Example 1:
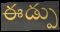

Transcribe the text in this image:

ఈడ్పు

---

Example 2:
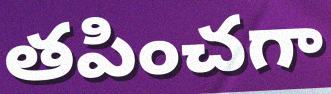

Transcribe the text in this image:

తపించగా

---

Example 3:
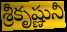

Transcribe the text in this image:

శ్రీకృష్ణునీ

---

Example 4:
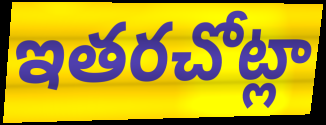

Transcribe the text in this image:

ఇతరచోట్లా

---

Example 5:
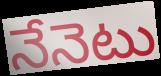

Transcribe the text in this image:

నేనెటు